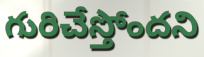
గురిచేస్తోందని